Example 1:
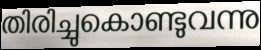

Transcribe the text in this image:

തിരിച്ചുകൊണ്ടുവന്നു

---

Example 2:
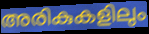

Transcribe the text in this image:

അരികുകളിലും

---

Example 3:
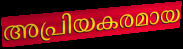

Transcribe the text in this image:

അപ്രിയകരമായ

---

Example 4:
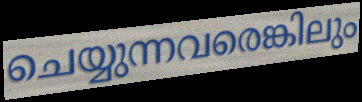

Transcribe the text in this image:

ചെയ്യുന്നവരെങ്കിലും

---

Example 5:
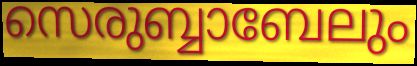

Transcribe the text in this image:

സെരുബ്ബാബേലും